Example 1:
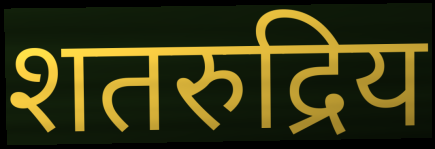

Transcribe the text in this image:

शतरुद्रिय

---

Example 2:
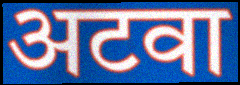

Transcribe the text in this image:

अटवा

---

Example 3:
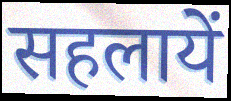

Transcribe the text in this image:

सहलायें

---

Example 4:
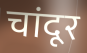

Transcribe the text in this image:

चांदूर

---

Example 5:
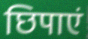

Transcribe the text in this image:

छिपाएं